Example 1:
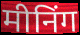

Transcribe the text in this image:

मीनिंग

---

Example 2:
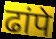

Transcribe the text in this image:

ढांपे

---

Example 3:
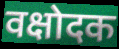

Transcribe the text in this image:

वक्षोदक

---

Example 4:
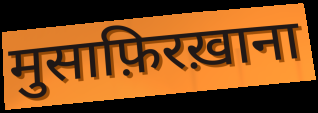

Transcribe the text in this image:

मुसाफ़िरख़ाना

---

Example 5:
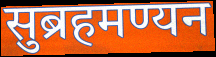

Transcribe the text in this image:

सुब्रहमण्यन